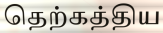
தெற்கத்திய